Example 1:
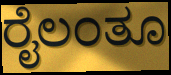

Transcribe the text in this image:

ರೈಲಂತೂ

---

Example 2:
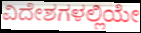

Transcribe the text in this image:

ವಿದೇಶಗಳಲ್ಲಿಯೇ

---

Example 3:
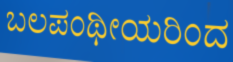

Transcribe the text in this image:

ಬಲಪಂಥೀಯರಿಂದ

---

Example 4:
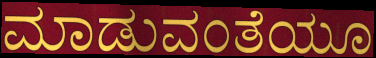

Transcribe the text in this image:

ಮಾಡುವಂತೆಯೂ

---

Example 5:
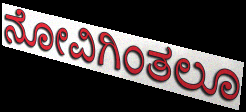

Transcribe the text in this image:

ನೋವಿಗಿಂತಲೂ